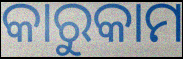
କାରୁକାମ